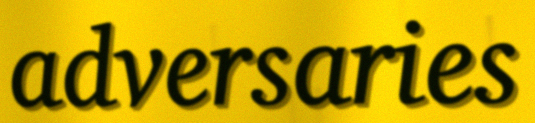
adversaries